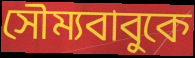
সৌম্যবাবুকে